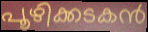
പൂഴിക്കടകൻ